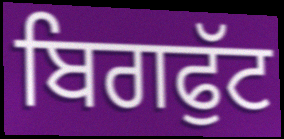
ਬਿਗਫੁੱਟ